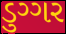
ડુગ્ગર